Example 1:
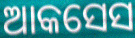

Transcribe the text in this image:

ଆକସେସ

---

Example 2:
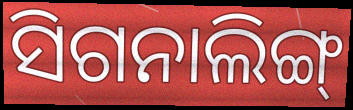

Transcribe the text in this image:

ସିଗନାଲିଙ୍ଗ୍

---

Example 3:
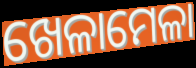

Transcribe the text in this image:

ଖେଳାମେଳା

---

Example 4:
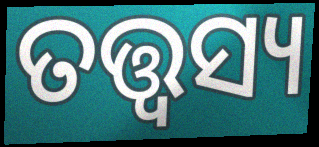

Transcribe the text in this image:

ତତ୍ତ୍ୱସ୍ୟ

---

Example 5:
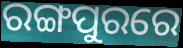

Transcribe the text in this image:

ରଙ୍ଗପୁରରେ